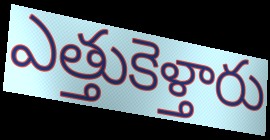
ఎత్తుకెళ్తారు